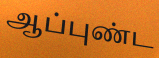
ஆப்புண்ட